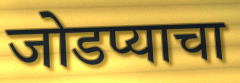
जोडप्याचा